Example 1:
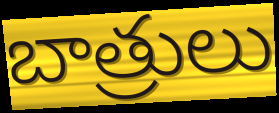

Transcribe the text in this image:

బాత్రులు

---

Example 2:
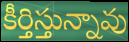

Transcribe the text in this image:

కీర్తిస్తున్నావు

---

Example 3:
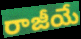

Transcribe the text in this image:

రాజీయే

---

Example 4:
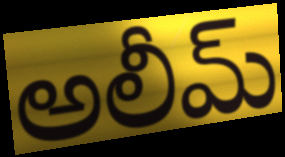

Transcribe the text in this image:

అలీమ్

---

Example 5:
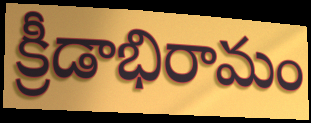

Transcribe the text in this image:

క్రీడాభిరామం